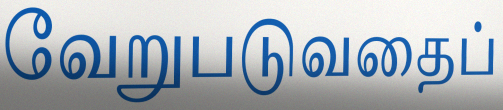
வேறுபடுவதைப்